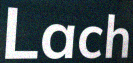
Lach